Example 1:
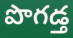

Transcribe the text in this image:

పొగడ్త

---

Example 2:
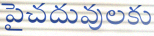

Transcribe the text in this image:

పైచదువులకు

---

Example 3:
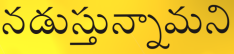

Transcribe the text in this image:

నడుస్తున్నామని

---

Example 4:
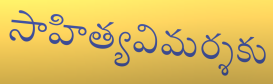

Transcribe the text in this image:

సాహిత్యవిమర్శకు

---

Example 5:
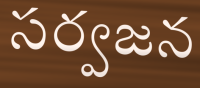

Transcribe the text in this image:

సర్వజన